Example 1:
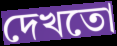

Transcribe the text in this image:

দেখতো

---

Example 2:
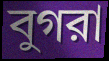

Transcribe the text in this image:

বুগরা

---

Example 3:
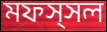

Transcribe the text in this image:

মফস্‌সল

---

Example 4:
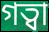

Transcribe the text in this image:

গত্বা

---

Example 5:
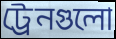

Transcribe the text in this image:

ট্রেনগুলো